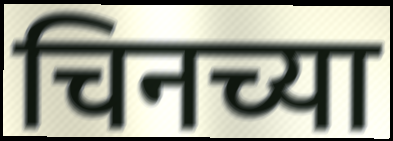
चिनच्या